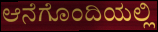
ಆನೆಗೊಂದಿಯಲ್ಲಿ